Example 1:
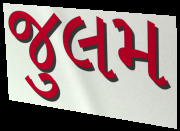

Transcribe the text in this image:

જુલમ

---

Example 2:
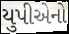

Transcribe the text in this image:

યુપીએનો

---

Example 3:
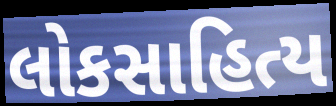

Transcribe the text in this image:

લોકસાહિત્ય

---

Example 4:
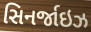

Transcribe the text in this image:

સિનર્જાઇઝ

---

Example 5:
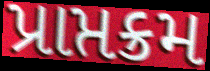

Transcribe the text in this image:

પ્રાપ્તક્રમ